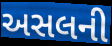
અસલની